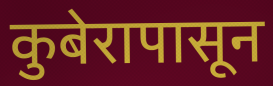
कुबेरापासून